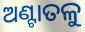
ଅଣ୍ଟାତଳୁ